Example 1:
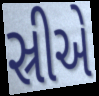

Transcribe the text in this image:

સ્રીએ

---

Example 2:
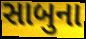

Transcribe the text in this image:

સાબુના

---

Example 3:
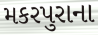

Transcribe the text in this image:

મકરપુરાના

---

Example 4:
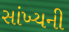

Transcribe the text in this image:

સાંખ્યની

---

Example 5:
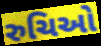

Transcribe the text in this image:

રુચિઓ